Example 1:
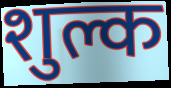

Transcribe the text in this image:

शुल्क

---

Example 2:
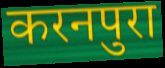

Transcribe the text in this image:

करनपुरा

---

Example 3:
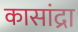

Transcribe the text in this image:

कासांद्रा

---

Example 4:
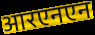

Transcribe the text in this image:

आरएनएन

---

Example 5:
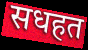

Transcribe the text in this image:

सधहत